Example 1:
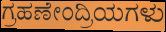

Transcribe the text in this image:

ಗ್ರಹಣೇಂದ್ರಿಯಗಳು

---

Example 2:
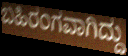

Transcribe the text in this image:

ಬಹಿರಂಗವಾಗಿದ್ದು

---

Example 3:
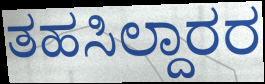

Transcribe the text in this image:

ತಹಸಿಲ್ದಾರರ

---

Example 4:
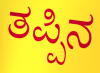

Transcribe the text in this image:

ತಪ್ಪಿನ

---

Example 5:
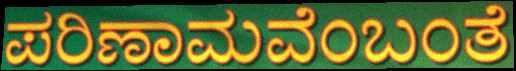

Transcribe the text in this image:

ಪರಿಣಾಮವೆಂಬಂತೆ